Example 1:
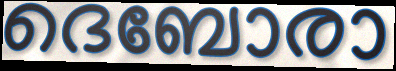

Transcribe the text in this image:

ദെബോരാ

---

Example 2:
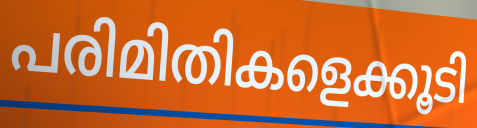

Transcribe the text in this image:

പരിമിതികളെക്കൂടി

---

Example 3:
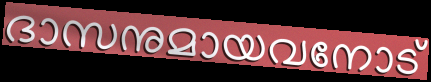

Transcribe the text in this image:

ദാസനുമായവനോട്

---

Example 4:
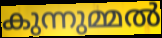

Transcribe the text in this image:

കുന്നുമ്മൽ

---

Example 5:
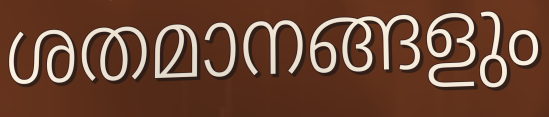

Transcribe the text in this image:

ശതമാനങ്ങളും